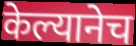
केल्यानेच